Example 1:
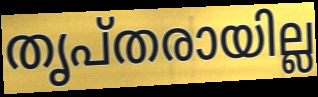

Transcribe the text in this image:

തൃപ്തരായില്ല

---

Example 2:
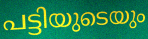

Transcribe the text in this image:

പട്ടിയുടെയും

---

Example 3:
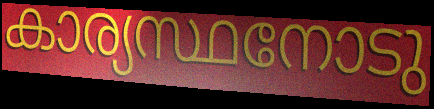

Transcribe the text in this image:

കാര്യസ്ഥനോടു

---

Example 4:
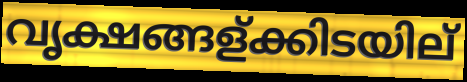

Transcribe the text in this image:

വൃക്ഷങ്ങള്ക്കിടയില്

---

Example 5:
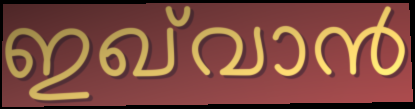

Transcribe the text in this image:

ഇഖ്‌വാൻ